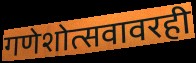
गणेशोत्सवावरही